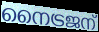
നൈട്രജന്